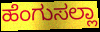
ಹೆಂಗುಸಲ್ಲಾ